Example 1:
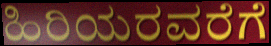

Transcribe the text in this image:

ಹಿರಿಯರವರೆಗೆ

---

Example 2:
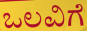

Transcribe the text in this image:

ಒಲವಿಗೆ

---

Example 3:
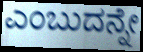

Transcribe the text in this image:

ಎಂಬುದನ್ನೇ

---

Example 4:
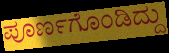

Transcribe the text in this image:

ಪೂರ್ಣಗೊಂಡಿದ್ದು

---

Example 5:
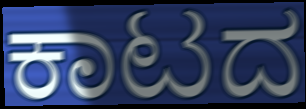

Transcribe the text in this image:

ಕಾಟದ